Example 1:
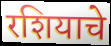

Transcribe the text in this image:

रशियाचे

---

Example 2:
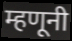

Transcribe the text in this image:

म्हणूनी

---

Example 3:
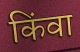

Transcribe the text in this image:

किंवा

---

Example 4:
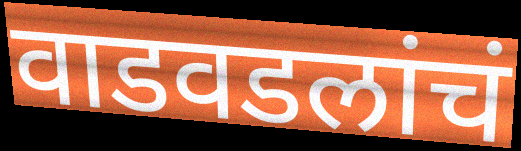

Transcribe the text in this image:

वाडवडलांचं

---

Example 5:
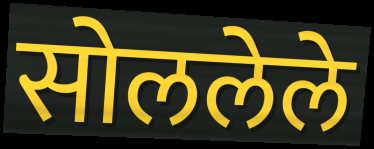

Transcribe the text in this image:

सोललेले